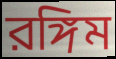
রঙ্গিম